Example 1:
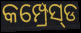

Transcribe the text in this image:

କମ୍ପ୍ରେସ୍‌ଡ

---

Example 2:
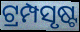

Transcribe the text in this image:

ଟ୍ରମ୍ପସୃଷ୍ଟ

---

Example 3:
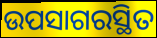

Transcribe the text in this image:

ଉପସାଗରସ୍ଥିତ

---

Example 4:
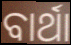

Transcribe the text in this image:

ବାର୍ଥା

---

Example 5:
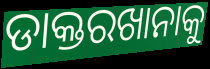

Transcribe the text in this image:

ଡାକ୍ତରଖାନାକୁ